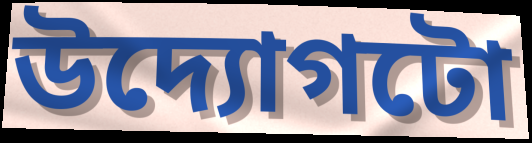
উদ্যোগটো